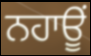
ਨਹਾਊਂ